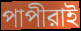
পাপীরাই